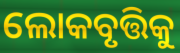
ଲୋକବୃତ୍ତିକୁ